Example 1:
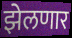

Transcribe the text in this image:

झेलणार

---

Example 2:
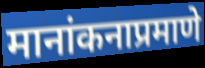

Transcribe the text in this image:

मानांकनाप्रमाणे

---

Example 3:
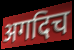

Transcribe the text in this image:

अगदिच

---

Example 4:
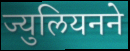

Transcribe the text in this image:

ज्युलियनने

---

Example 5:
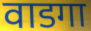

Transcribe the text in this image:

वाडगा